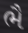
ભૈ